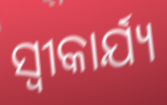
ସ୍ୱୀକାର୍ଯ୍ୟ